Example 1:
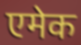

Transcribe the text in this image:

एमेक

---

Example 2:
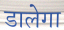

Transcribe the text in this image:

डालेगा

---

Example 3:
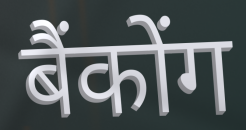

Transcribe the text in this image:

बैंकोंग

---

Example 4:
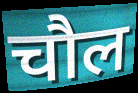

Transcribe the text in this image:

चौल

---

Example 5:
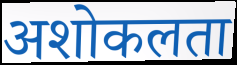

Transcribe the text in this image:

अशोकलता